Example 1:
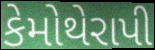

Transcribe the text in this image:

કેમોથેરાપી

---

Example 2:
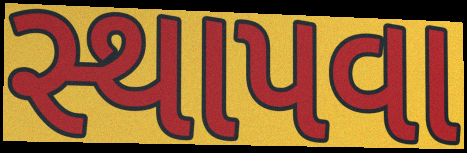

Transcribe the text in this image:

સ્થાપવા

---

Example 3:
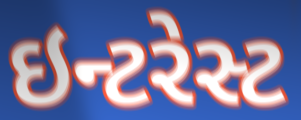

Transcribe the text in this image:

ઇન્ટરેસ્ટ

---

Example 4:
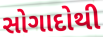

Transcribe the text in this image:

સોગાદોથી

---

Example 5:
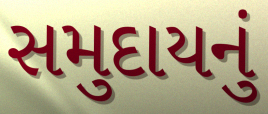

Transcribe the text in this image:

સમુદાયનું